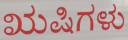
ಋಷಿಗಳು